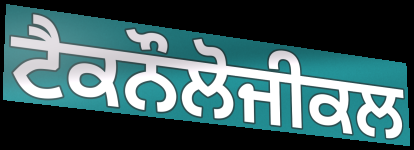
ਟੈਕਨੌਲੋਜੀਕਲ